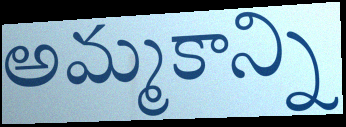
అమ్మకాన్ని